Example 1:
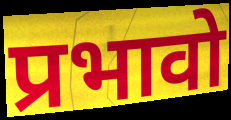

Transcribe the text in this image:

प्रभावो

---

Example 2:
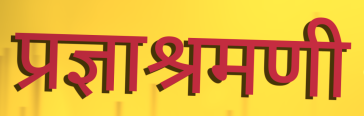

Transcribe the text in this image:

प्रज्ञाश्रमणी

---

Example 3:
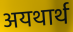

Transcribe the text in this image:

अयथार्थ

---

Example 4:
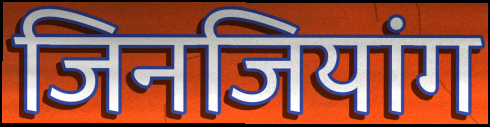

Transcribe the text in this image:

जिनजियांग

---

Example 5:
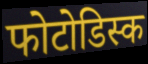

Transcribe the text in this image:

फोटोडिस्क